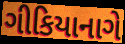
ગીકિયાનાગે